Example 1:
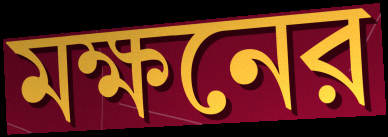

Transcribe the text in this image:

মক্ষনের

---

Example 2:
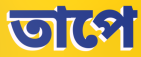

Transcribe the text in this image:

তাপে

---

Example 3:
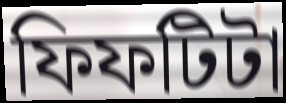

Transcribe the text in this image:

ফিফটিটা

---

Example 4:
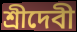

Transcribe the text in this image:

শ্রীদেবী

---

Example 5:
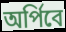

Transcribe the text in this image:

অর্পিবে